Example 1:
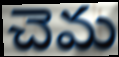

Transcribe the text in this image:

చెమ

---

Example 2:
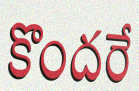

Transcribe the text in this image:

కొందరే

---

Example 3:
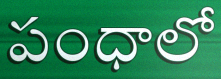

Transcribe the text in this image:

పంధాలో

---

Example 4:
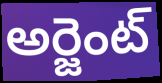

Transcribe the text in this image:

అర్జెంట్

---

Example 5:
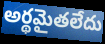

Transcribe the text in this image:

అర్థమైతలేదు